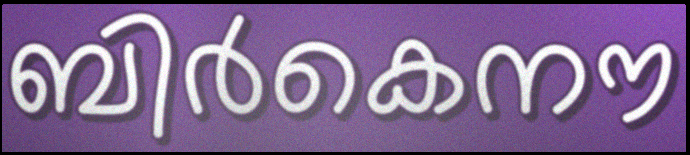
ബിർകെനൗ